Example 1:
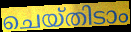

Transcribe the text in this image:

ചെയ്തിടാം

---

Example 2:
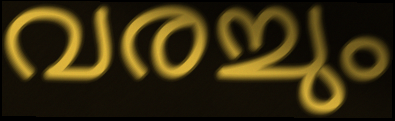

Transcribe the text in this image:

വരച്ചും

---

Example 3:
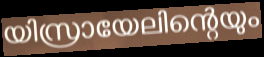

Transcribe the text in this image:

യിസ്രായേലിന്റെയും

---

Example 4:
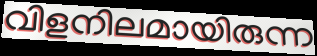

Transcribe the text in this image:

വിളനിലമായിരുന്ന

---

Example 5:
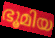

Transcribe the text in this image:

ഭൂമിയ